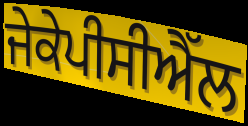
ਜੇਕੇਪੀਸੀਐੱਲ